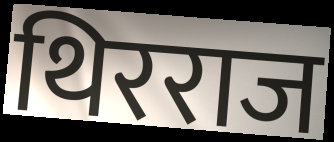
थिरराज